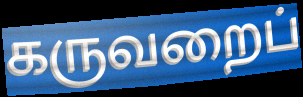
கருவறைப்